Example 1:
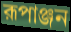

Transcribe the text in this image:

রূপাঞ্জন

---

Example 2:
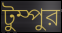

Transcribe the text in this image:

টুম্পুর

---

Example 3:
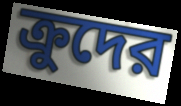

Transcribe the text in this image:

ক্রুদের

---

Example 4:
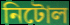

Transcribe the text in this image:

নিটোল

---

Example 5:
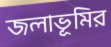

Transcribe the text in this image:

জলাভূমির